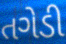
તગેડી